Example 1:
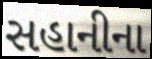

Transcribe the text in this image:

સહાનીના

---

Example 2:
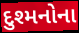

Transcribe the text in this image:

દુશ્મનોના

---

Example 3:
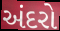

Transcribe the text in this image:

અંદરો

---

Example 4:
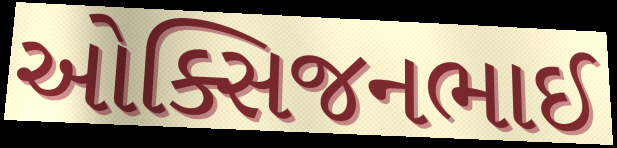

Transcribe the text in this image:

ઓક્સિજનભાઈ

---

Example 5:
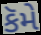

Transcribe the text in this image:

કૅમે